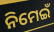
ନିମେଇଁ